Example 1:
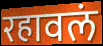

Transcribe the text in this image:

रहावलं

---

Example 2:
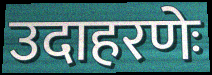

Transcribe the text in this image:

उदाहरणेः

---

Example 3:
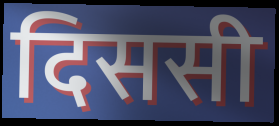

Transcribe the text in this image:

दिससी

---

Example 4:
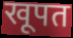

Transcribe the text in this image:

खूपत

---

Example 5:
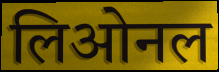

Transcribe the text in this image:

लिओनल